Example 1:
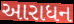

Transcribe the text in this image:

આરાધન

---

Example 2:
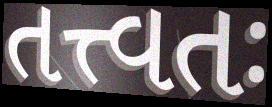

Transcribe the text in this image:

તત્ત્વતઃ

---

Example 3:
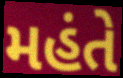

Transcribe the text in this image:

મહંતે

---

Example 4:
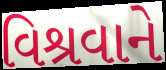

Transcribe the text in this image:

વિશ્રવાને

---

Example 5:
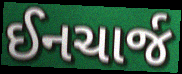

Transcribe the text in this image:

ઈનચાર્જ